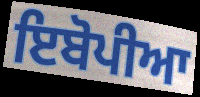
ਇਬੋਪੀਆ